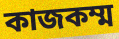
কাজকম্ম